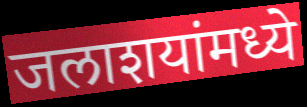
जलाशयांमध्ये